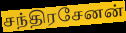
சந்திரசேனன்